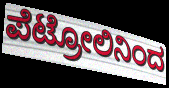
ಪೆಟ್ರೋಲಿನಿಂದ